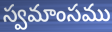
స్వమాంసము